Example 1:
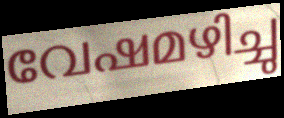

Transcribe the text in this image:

വേഷമഴിച്ചു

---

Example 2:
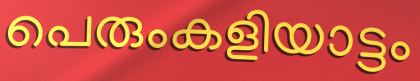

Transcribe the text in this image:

പെരുംകളിയാട്ടം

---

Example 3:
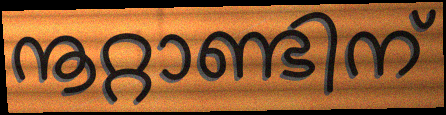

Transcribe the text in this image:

നൂറ്റാണ്ടിന്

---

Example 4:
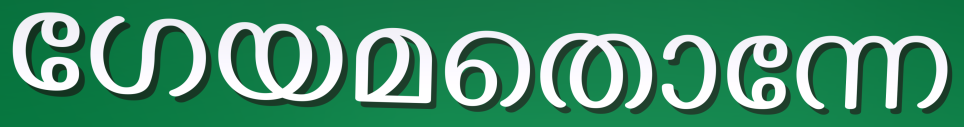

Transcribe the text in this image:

ഗേയമതൊന്നേ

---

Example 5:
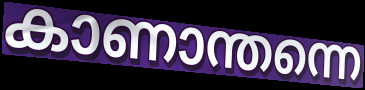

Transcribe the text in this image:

കാണാന്തന്നെ